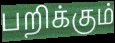
பறிக்கும்